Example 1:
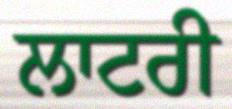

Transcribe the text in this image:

ਲਾਟਰੀ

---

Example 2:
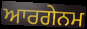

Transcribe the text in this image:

ਆਰਗੇਨਮ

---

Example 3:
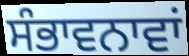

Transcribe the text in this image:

ਸੰਭਾਵਨਾਵਾਂ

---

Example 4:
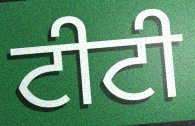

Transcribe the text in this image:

ਟੀਟੀ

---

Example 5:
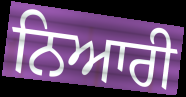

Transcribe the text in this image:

ਨਿਆਰੀ